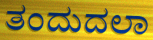
ತಂದುದಲಾ